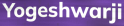
Yogeshwarji